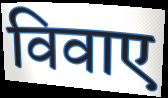
विवाए